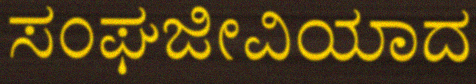
ಸಂಘಜೀವಿಯಾದ